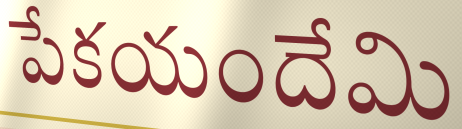
పేకయందేమి